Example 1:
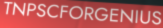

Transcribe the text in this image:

TNPSCFORGENIUS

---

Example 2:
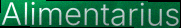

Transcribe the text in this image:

Alimentarius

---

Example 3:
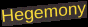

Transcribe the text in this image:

Hegemony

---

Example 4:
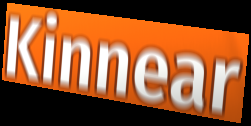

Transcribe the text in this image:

Kinnear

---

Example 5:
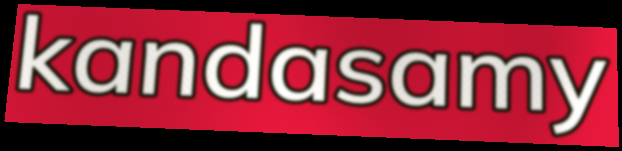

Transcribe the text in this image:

kandasamy